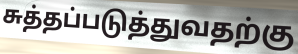
சுத்தப்படுத்துவதற்கு